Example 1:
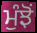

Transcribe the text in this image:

ਮੁੰਝੋਂ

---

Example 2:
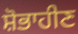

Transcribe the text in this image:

ਸ਼ੋਭਾਹੀਣ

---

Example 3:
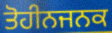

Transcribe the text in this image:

ਤੋਹੀਨਜਨਕ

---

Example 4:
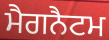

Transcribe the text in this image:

ਮੈਗਨੈਟਮ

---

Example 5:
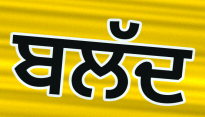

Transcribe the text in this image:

ਬਲੱਦ